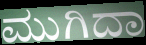
ಮುಗಿದಾ